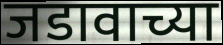
जडावाच्या